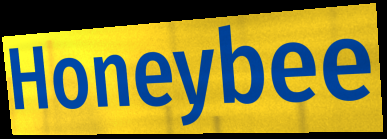
Honeybee